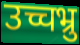
उच्चभ्रु